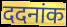
ददनांक